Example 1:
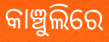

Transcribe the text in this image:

କାଞ୍ଚୁଲିରେ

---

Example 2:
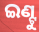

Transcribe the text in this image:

ଇଣ୍ଟୁ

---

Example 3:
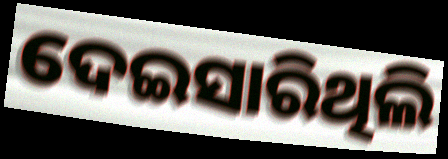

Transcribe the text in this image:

ଦେଇସାରିଥିଲି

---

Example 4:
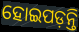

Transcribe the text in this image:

ହୋଇପଡ଼ନ୍ତି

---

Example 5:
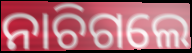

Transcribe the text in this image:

ନାଚିଗଲେ